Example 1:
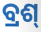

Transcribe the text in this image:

ବ୍ରଶ୍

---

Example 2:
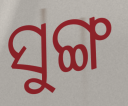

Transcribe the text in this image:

ସୁଙ୍ଗ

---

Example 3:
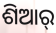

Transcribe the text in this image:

ଶିଆର୍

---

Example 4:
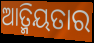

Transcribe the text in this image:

ଆତ୍ମିୟତାର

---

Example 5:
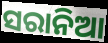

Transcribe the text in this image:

ସରାନିଆ